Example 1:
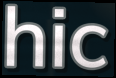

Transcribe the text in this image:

hic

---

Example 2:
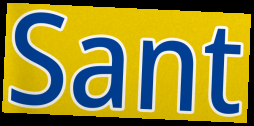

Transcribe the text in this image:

Sant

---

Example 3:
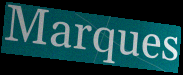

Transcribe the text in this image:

Marques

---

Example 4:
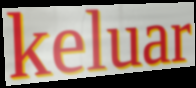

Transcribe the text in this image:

keluar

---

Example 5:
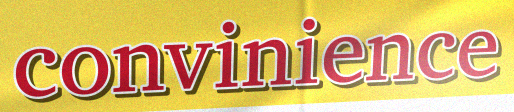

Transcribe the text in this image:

convinience